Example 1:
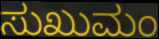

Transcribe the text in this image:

ಸುಖುಮಂ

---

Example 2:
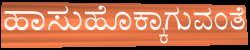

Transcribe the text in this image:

ಹಾಸುಹೊಕ್ಕಾಗುವಂತೆ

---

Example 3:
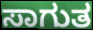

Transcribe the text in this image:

ಸಾಗುತ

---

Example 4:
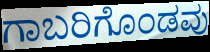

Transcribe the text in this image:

ಗಾಬರಿಗೊಂಡವು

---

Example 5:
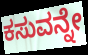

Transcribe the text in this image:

ಕಸುವನ್ನೇ